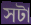
সটা